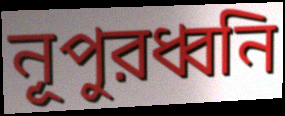
নূপুরধ্বনি